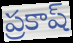
ప్రకాష్